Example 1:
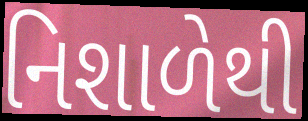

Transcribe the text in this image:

નિશાળેથી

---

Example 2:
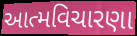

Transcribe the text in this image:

આત્મવિચારણા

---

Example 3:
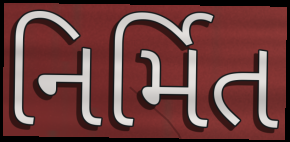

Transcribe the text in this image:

નિર્મિત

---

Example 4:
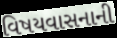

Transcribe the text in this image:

વિષયવાસનાની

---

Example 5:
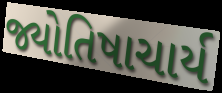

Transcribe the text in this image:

જ્યોતિષાચાર્ય